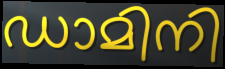
ഡാമിനി